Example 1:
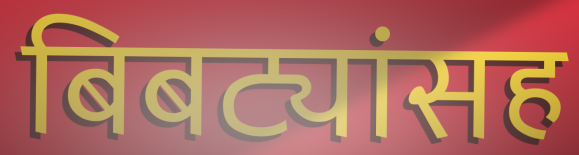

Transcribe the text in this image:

बिबट्यांसह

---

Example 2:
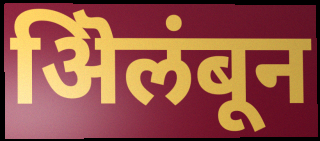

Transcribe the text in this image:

ऄिलंबून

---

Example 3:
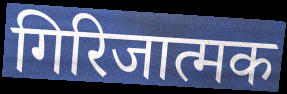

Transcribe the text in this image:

गिरिजात्मक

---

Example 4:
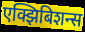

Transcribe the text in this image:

एक्झिबिशन्स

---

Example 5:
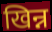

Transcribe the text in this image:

खिन्न